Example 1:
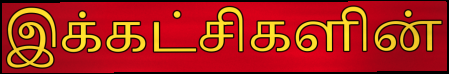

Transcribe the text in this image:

இக்கட்சிகளின்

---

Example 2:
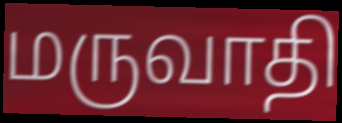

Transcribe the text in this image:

மருவாதி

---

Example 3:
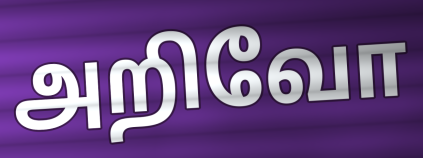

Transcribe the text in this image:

அறிவோ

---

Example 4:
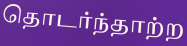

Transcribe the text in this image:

தொடர்ந்தாற்ற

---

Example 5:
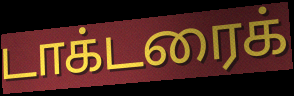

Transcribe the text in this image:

டாக்டரைக்